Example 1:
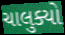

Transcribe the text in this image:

ચાલુક્યો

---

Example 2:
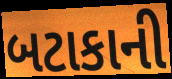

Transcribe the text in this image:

બટાકાની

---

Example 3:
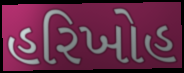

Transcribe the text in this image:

હરિખોહ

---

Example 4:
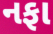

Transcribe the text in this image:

નફા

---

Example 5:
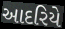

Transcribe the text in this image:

આદરિયે